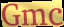
Gmc